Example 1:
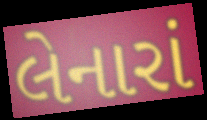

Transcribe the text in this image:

લેનારાં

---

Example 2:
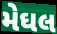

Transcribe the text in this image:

મેઘલ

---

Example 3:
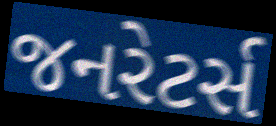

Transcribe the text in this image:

જનરેટર્સ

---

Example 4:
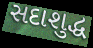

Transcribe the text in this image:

સદાશુદ્ધ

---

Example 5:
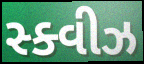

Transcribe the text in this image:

સ્ક્વીઝ